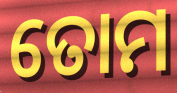
ତୋମ